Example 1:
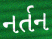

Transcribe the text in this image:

નર્તન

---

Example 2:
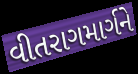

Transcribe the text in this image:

વીતરાગમાર્ગને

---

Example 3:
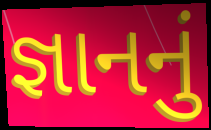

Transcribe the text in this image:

જ્ઞાનનું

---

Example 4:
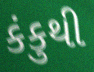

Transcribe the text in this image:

કંકુથી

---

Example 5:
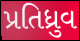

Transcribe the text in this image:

પ્રતિધ્રુવ